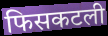
फिसकटली